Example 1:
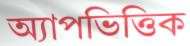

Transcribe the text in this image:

অ্যাপভিত্তিক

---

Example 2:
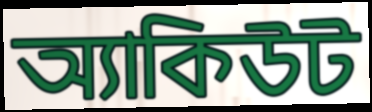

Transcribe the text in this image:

অ্যাকিউট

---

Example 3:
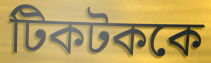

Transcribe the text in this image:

টিকটককে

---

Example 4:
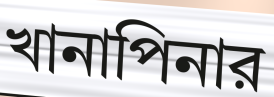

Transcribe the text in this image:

খানাপিনার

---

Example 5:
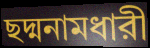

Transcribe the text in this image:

ছদ্মনামধারী